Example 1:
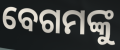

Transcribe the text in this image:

ବେଗମଙ୍କୁ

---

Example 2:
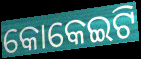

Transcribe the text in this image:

କୋକେଇଟି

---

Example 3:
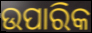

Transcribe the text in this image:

ଉପାରିକ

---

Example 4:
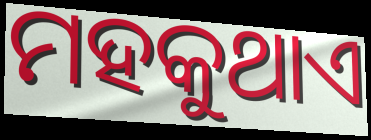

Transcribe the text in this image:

ମହକୁଥାଏ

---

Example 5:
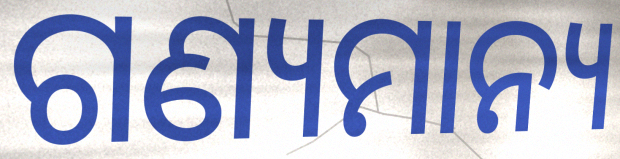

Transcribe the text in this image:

ଗଣ୍ୟମାନ୍ୟ